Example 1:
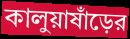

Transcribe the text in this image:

কালুয়াষাঁড়ের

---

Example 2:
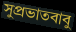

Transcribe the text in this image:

সুপ্রভাতবাবু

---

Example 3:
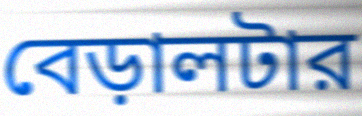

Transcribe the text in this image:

বেড়ালটার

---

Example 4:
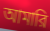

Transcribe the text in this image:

আমারি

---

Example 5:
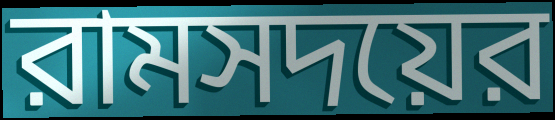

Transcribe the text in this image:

রামসদয়ের